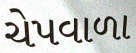
ચેપવાળા